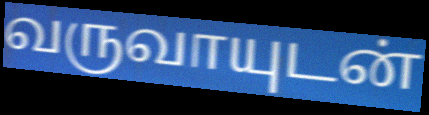
வருவாயுடன்